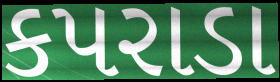
કપરાડા